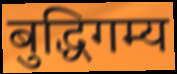
बुद्धिगम्य